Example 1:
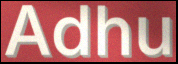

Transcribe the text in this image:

Adhu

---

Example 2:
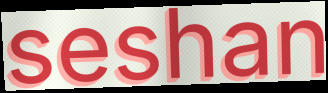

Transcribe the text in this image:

seshan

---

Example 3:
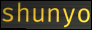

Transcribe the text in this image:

shunyo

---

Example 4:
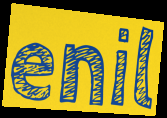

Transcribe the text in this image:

enil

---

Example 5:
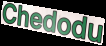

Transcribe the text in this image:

Chedodu